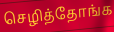
செழித்தோங்க